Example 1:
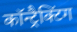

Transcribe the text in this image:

कॉन्ट्रैक्टिंग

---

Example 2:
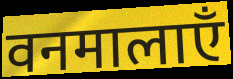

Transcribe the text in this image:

वनमालाएँ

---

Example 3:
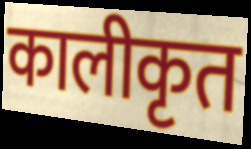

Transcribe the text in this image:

कालीकृत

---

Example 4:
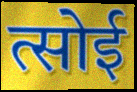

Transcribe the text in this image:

त्सोई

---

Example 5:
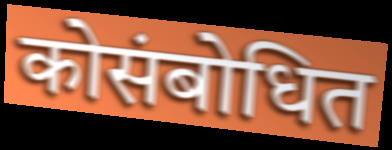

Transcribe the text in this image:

कोसंबोधित